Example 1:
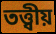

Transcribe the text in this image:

তত্ত্বীয়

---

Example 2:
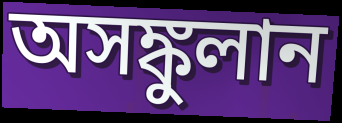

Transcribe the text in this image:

অসঙ্কুলান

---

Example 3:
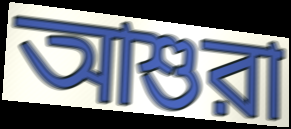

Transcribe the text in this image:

আশুরা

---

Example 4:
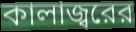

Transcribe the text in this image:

কালাজ্বরের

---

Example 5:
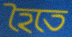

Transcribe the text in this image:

হৈতে